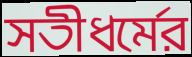
সতীধর্মের